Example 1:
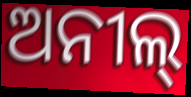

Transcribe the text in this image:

ଅନୀଲ୍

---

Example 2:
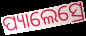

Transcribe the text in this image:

ପ୍ୟାଲେସ୍ରେ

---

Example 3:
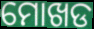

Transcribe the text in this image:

ମୋଖଡ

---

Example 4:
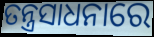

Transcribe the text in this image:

ତନ୍ତ୍ରସାଧନାରେ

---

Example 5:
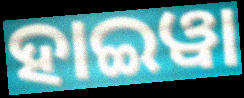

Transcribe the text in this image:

ହାଇୱା